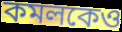
কমলকেও